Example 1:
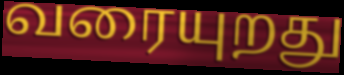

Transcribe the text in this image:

வரையுறது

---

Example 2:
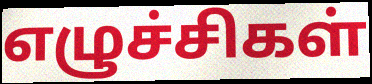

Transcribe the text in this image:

எழுச்சிகள்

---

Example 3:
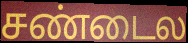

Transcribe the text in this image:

சண்டைல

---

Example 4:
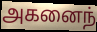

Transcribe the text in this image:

அகனைந்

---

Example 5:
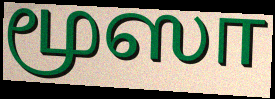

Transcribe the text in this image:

மூஸா